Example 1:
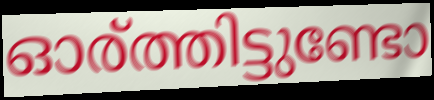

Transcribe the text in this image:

ഓര്ത്തിട്ടുണ്ടോ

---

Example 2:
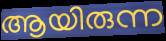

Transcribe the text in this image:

ആയിരുന്ന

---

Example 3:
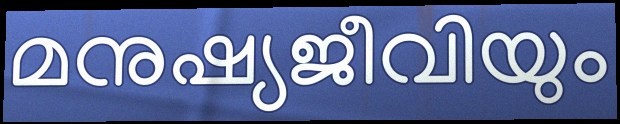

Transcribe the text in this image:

മനുഷ്യജീവിയും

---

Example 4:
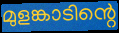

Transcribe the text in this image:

മുളങ്കാടിന്റെ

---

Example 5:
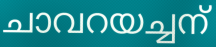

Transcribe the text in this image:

ചാവറയച്ചന്